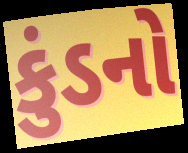
કુંડનો